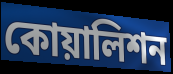
কোয়ালিশন